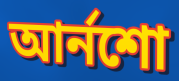
আর্নশো